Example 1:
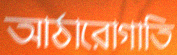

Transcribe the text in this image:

আঠারোগাতি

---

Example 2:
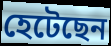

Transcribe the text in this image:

হেটেছেন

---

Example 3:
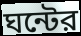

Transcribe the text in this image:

ঘন্টের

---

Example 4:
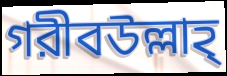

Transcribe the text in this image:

গরীবউল্লাহ্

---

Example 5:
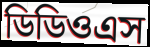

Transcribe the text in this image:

ডিডিওএস